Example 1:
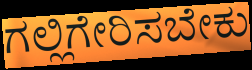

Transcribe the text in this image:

ಗಲ್ಲಿಗೇರಿಸಬೇಕು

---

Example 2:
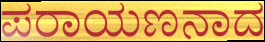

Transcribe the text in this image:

ಪರಾಯಣನಾದ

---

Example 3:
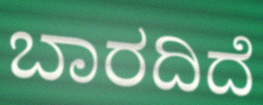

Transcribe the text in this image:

ಬಾರದಿದೆ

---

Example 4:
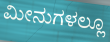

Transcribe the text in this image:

ಮೀನುಗಳಲ್ಲೂ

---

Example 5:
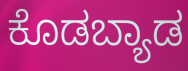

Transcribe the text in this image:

ಕೊಡಬ್ಯಾಡ